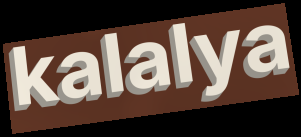
kalalya